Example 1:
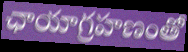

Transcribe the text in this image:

ఛాయాగ్రహణంతో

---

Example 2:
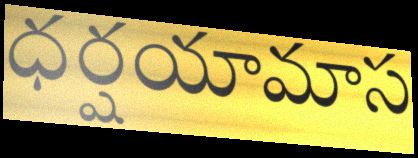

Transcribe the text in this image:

ధర్షయామాస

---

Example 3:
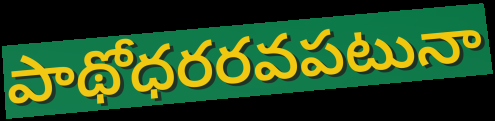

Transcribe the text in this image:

పాథోధరరవపటునా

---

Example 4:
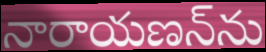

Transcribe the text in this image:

నారాయణన్‌ను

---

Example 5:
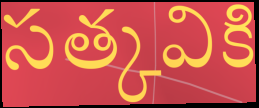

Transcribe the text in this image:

సత్కవికి